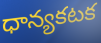
ధాన్యకటక